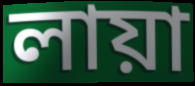
লায়া